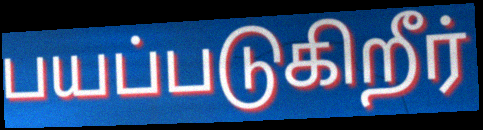
பயப்படுகிறீர்